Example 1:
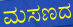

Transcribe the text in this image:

ಮಸಣದ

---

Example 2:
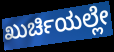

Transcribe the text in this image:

ಖುರ್ಚಿಯಲ್ಲೇ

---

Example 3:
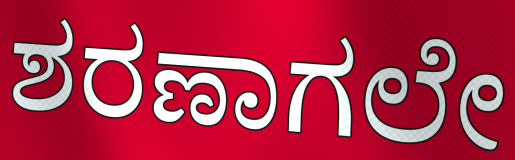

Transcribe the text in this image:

ಶರಣಾಗಲೇ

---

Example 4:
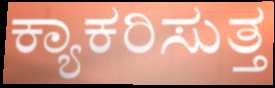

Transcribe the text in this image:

ಕ್ಯಾಕರಿಸುತ್ತ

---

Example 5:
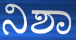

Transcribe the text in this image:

ನಿಶಾ